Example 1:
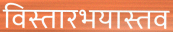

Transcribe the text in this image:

विस्तारभयास्तव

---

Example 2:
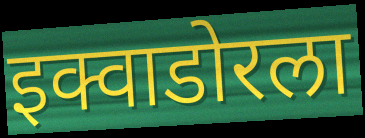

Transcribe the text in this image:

इक्वाडोरला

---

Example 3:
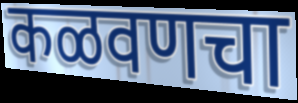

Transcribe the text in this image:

कळवणचा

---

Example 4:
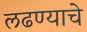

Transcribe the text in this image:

लढण्याचे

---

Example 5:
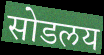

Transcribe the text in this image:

सोडलय